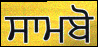
ਸਾਮਬੋ